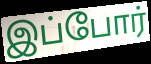
இப்போர்